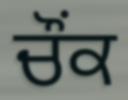
ਚੌਂਕ